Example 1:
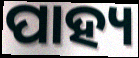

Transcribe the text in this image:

ପାହ୍ୟ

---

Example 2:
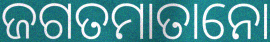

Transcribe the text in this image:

ଜଗତମାତାନୋ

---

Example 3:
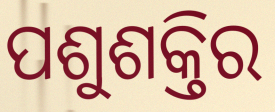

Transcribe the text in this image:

ପଶୁଶକ୍ତିର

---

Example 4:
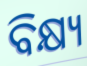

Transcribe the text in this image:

ବିକ୍ଷ୍ଯ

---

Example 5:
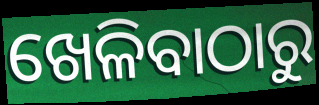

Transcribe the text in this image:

ଖେଳିବାଠାରୁ